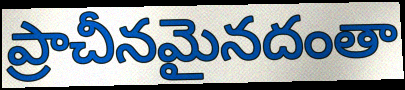
ప్రాచీనమైనదంతా